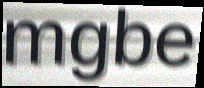
mgbe